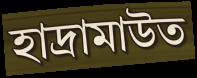
হাদ্রামাউত